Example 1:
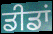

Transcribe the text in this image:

ਡੀਡਾਂ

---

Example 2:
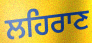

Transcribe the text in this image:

ਲਹਿਰਾਣ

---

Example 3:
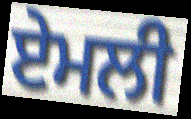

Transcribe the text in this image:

ਏਮਲੀ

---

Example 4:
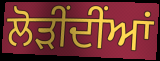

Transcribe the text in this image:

ਲੋੜੀਂਦੀਂਆਂ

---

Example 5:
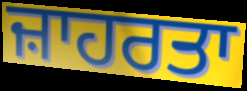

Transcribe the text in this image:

ਜ਼ਾਹਰਤਾ